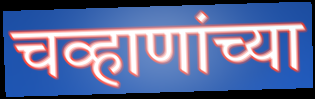
चव्हाणांच्या